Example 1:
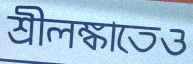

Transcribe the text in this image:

শ্রীলঙ্কাতেও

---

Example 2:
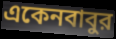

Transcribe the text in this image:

একেনবাবুর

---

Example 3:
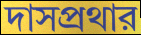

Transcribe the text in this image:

দাসপ্রথার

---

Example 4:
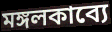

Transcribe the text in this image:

মঙ্গলকাব্যে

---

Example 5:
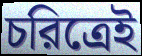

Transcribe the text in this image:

চরিত্রেই